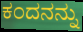
ಕಂದನನ್ನು